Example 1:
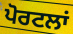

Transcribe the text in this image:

ਪੋਰਟਲਾਂ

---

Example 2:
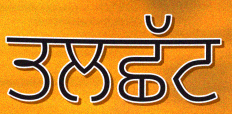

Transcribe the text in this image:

ਤਲਛੱਟ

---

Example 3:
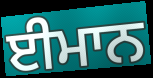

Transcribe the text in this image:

ਈਮਾਨ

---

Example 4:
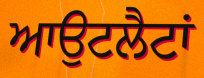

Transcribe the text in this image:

ਆਉਟਲੈਟਾਂ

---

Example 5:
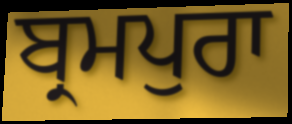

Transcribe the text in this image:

ਬ੍ਰਮਪੁਰਾ